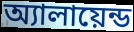
অ্যালায়েন্ড